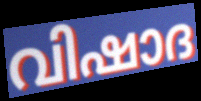
വിഷാദ